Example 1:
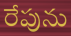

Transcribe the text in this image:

రేపును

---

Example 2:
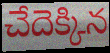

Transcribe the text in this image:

చేదెక్కిన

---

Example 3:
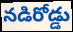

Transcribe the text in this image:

నడిరోడ్డు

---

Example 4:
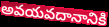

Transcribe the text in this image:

అవయవదానానికి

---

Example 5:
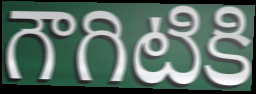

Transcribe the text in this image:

గౌగిటికి